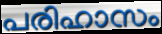
പരിഹാസം